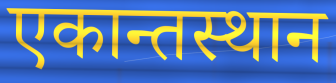
एकान्तस्थान